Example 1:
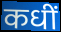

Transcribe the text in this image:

कधीं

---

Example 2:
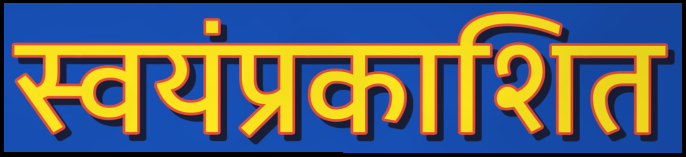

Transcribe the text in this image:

स्वयंप्रकाशित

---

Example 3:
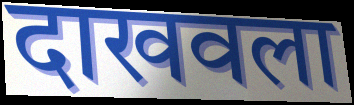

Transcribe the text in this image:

दाखवला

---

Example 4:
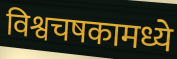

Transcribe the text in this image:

विश्वचषकामध्ये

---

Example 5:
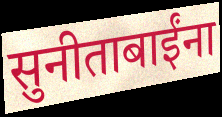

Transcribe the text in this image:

सुनीताबाईंना